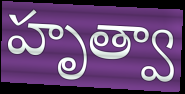
హృత్వా